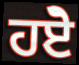
ਹਏੋ